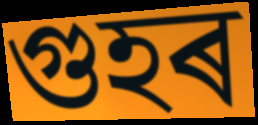
গুহৰ